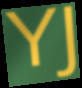
YJ